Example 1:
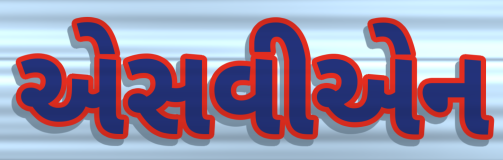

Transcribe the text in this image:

એસવીએન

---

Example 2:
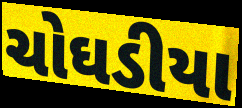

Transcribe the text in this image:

ચોઘડીયા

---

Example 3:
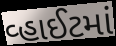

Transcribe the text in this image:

વ્હાઈટમાં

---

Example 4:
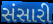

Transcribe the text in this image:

સંસારી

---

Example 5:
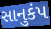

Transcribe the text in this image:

સાનુકંપ